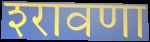
श्रावणा